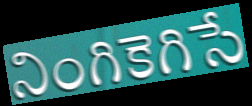
నింగికెగిసే